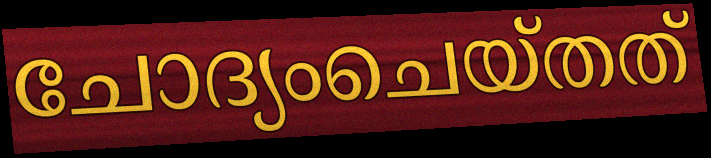
ചോദ്യംചെയ്തത്